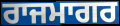
ਰਾਜਮਾਗਰ